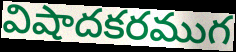
విషాదకరముగ